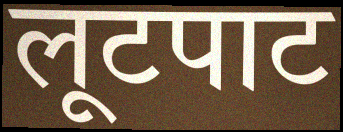
लूटपाट